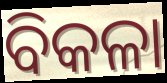
ବିକଳା